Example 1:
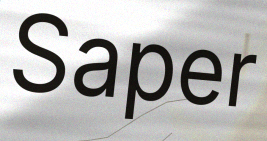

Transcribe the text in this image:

Saper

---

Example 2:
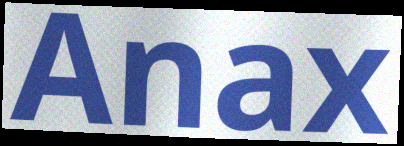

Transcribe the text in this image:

Anax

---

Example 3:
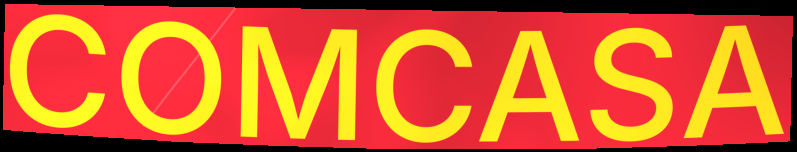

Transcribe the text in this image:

COMCASA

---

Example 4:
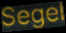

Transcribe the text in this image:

Segel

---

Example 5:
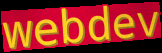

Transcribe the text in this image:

webdev